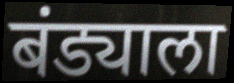
बंड्याला